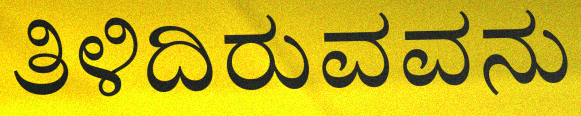
ತಿಳಿದಿರುವವನು